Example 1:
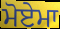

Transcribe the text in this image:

ਮੋਏਮਾ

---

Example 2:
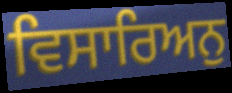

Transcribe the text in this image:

ਵਿਸਾਰਿਅਨੁ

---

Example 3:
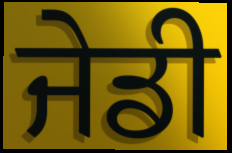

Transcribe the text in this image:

ਜੇਡੀ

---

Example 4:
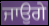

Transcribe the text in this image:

ਜਾਉਗੇ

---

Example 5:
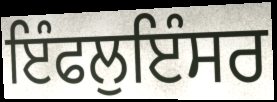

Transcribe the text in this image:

ਇੰਫਲੁਇੰਸਰ